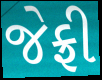
જેફ્રી